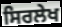
ਸਿਰਲੇਖ